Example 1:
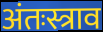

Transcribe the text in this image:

अंतःस्त्राव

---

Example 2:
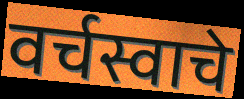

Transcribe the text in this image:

वर्चस्वाचे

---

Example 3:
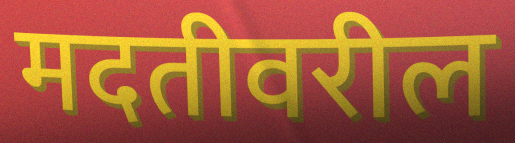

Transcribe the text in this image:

मदतीवरील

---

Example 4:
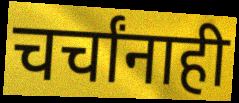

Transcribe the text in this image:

चर्चांनाही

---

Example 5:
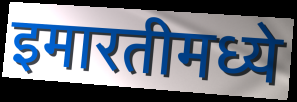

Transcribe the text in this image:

इमारतीमध्ये